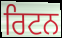
ਰਿਟਨ